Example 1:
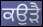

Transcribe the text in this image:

ਕਉੜੈ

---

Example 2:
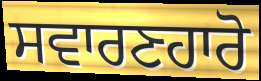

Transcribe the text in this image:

ਸਵਾਰਣਹਾਰੋ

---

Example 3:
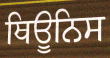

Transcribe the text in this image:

ਥਿਊਨਿਸ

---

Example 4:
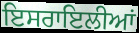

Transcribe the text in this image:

ਇਸਰਾਇਲੀਆਂ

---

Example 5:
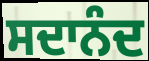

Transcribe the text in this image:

ਸਦਾਨੰਦ